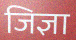
जिज्ञा